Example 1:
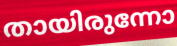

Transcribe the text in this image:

തായിരുന്നോ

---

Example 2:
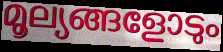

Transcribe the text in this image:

മൂല്യങ്ങളോടും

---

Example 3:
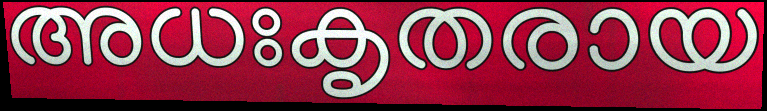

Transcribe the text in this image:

അധഃകൃതരായ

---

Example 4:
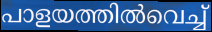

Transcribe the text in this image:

പാളയത്തിൽവെച്ച്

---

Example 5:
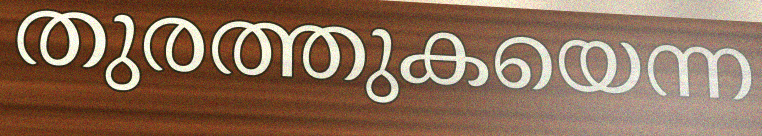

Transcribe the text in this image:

തുരത്തുകയെന്ന